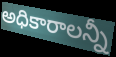
అధికారాలన్నీ